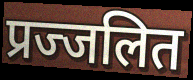
प्रज्जलित